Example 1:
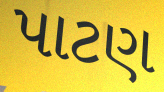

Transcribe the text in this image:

પાટણ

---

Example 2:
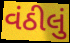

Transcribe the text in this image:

વંઠીલું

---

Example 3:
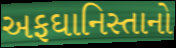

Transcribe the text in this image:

અફઘાનિસ્તાનો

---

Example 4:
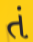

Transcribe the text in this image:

તં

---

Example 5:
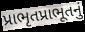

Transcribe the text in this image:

પ્રાભૃતપ્રાભૂતનું